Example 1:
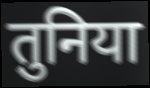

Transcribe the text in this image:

तुनिया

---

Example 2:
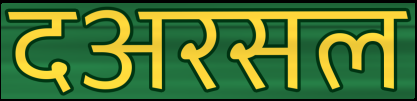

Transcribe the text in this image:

दअरसल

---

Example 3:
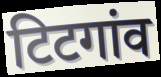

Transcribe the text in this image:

टिटगांव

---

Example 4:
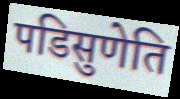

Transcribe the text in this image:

पडिसुणेति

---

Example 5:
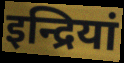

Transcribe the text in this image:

इन्द्रियां